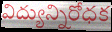
విద్యున్నిరోధక